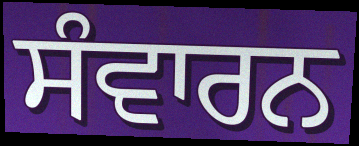
ਸੰਵਾਰਨ